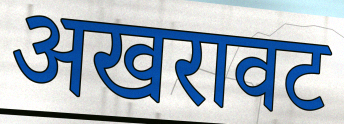
अखरावट